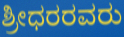
ಶ್ರೀಧರರವರು